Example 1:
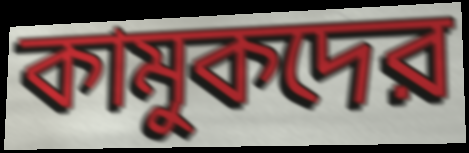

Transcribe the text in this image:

কামুকদের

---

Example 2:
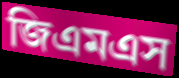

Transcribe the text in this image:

জিএমএস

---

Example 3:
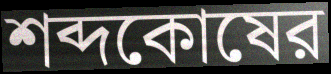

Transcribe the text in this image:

শব্দকোষের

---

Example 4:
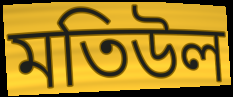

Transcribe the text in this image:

মতিউল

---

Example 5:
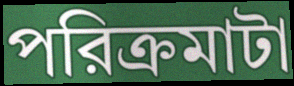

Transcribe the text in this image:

পরিক্রমাটা